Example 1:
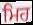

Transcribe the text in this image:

ਮਿਹ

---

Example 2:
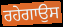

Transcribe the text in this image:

ਰਹੇਗਾਉਸ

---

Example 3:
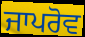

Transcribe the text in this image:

ਜਾਪਰੋਵ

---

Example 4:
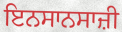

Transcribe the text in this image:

ਇਨਸਾਨਸਾਜ਼ੀ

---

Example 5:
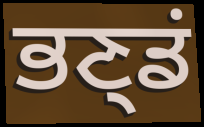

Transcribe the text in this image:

ਭਣ੍ਡਂ